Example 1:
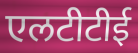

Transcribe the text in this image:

एलटीटीई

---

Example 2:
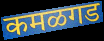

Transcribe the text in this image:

कमळगड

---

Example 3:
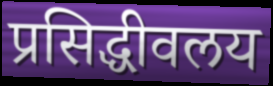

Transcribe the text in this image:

प्रसिद्धीवलय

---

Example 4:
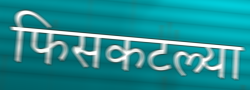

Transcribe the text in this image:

फिसकटल्या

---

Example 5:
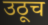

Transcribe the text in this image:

उठूच